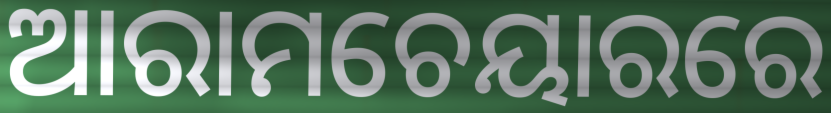
ଆରାମଚେୟାରରେ